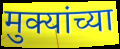
मुक्यांच्या